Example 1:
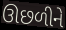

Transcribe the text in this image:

ઊછળીને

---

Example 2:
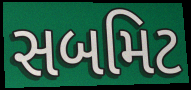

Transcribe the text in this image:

સબમિટ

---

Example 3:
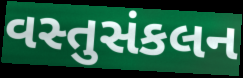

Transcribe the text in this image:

વસ્તુસંકલન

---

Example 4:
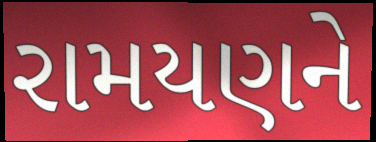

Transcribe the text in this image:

રામયણને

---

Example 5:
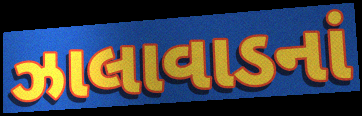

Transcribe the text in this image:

ઝાલાવાડનાં